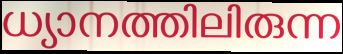
ധ്യാനത്തിലിരുന്ന